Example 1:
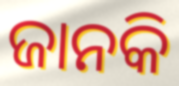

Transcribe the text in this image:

ଜାନକି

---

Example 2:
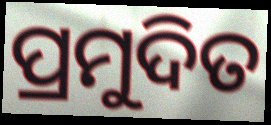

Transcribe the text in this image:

ପ୍ରମୁଦିତ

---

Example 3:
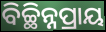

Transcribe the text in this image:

ବିଚ୍ଛିନ୍ନପ୍ରାୟ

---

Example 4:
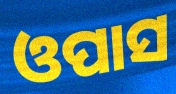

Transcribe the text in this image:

ଓପାସ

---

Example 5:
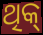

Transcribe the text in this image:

ଥିକ୍